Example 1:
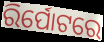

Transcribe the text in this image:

ରିର୍ପୋଟରେ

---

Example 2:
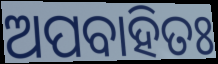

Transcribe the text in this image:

ଅପବାହିତଃ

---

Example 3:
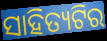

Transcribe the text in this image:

ସାହିତ୍ୟଟିର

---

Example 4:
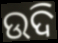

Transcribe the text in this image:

ଉଦି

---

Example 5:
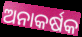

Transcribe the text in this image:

ଅନାକର୍ଷକ